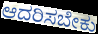
ಆದರಿಸಬೇಕು